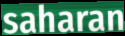
saharan